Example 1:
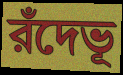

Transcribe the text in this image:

রঁদেভূ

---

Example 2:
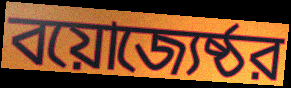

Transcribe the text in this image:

বয়োজ্যেষ্ঠর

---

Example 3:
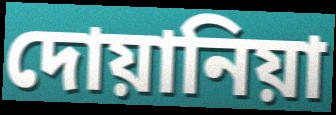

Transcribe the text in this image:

দোয়ানিয়া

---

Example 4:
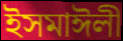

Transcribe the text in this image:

ইসমাঈলী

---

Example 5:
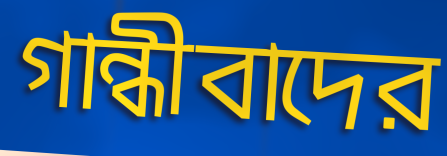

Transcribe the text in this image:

গান্ধীবাদের